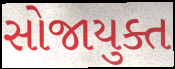
સોજાયુક્ત